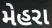
મેહરા